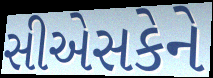
સીએસકેને